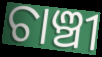
ଚାଞ୍ଚୀ